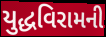
યુદ્ધવિરામની